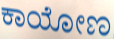
ಕಾಯೋಣ